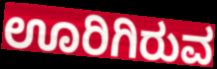
ಊರಿಗಿರುವ